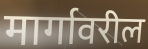
मार्गावरील